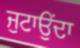
ਜੁਟਾਉਂਦਾ